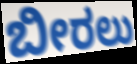
ಬೀರಲು